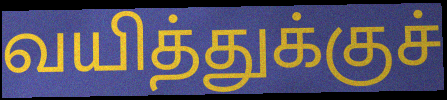
வயித்துக்குச்